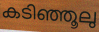
കടിഞ്ഞൂലു